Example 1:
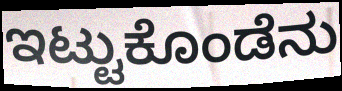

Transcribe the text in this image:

ಇಟ್ಟುಕೊಂಡೆನು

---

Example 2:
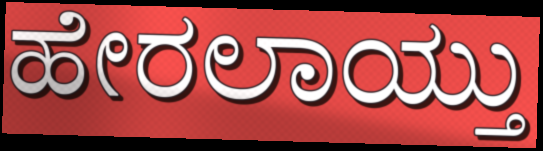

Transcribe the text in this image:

ಹೇರಲಾಯ್ತು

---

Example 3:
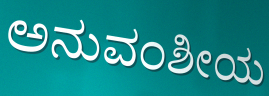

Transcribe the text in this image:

ಅನುವಂಶೀಯ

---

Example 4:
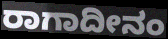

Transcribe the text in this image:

ರಾಗಾದೀನಂ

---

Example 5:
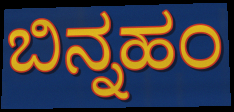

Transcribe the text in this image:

ಬಿನ್ನಹಂ